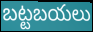
బట్టబయలు